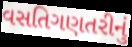
વસતિગણતરીનું